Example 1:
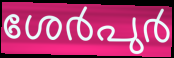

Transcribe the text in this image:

ശേർപുർ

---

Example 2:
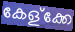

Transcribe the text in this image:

കേള്ക്കേ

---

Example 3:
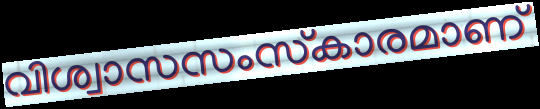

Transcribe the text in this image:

വിശ്വാസസംസ്‌കാരമാണ്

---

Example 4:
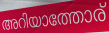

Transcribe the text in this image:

അറിയാത്തോര്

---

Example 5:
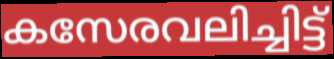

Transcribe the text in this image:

കസേരവലിച്ചിട്ട്